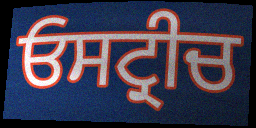
ਓਸਟ੍ਰੀਚ